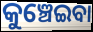
କୁଞ୍ଚେଇବା